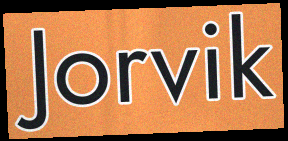
Jorvik